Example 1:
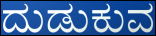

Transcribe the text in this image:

ದುಡುಕುವ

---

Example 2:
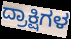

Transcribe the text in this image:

ದ್ರಾಕ್ಷಿಗಳ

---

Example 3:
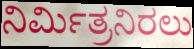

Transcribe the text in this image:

ನಿರ್ಮಿತ್ರನಿರಲು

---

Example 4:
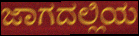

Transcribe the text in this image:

ಜಾಗದಲ್ಲಿಯ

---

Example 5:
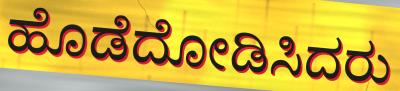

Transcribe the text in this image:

ಹೊಡೆದೋಡಿಸಿದರು